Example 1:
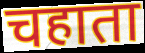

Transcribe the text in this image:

चहाता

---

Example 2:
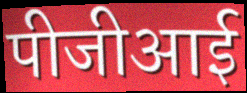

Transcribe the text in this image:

पीजीआई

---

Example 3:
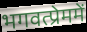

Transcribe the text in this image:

भगवत्प्रेममें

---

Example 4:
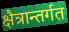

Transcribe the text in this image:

क्षैत्रान्तर्गत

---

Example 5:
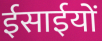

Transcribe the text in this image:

ईसाईयों